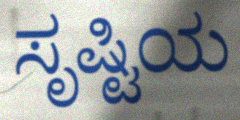
ಸೃಷ್ಟಿಯ